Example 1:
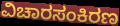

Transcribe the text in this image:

ವಿಚಾರಸಂಕಿರಣ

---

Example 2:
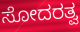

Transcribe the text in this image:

ಸೋದರತ್ವ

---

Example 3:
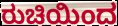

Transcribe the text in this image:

ರುಚಿಯಿಂದ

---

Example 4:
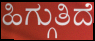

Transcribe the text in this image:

ಹಿಗ್ಗುತಿದೆ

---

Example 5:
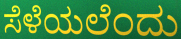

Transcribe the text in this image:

ಸೆಳೆಯಲೆಂದು